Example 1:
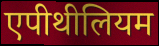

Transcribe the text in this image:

एपीथीलियम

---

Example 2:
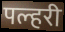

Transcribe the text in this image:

पल्हरी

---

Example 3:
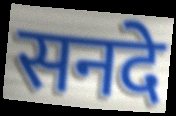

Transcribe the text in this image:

सनदे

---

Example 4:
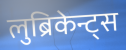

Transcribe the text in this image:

लुब्रिकेन्ट्स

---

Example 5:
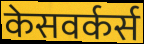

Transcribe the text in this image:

केसवर्कर्स